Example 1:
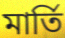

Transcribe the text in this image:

মার্তি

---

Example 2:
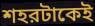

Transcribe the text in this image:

শহরটাকেই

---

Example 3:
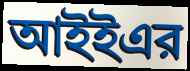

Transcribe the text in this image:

আইইএর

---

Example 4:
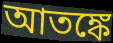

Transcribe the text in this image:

আতঙ্কে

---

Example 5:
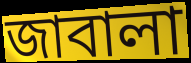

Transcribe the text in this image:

জাবালা